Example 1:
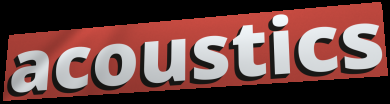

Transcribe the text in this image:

acoustics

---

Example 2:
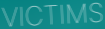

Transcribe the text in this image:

VICTIMS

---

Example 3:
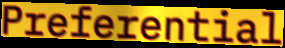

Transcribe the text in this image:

Preferential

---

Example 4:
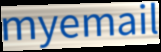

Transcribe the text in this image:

myemail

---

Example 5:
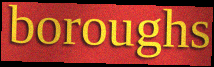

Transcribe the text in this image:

boroughs